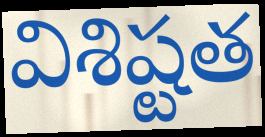
విశిష్టత